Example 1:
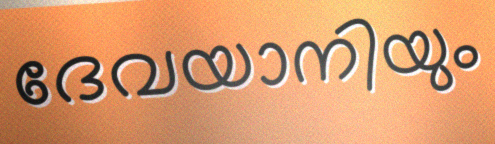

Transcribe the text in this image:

ദേവയാനിയും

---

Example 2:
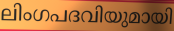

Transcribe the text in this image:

ലിംഗപദവിയുമായി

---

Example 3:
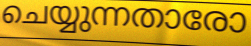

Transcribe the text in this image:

ചെയ്യുന്നതാരോ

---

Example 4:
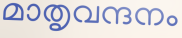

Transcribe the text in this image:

മാതൃവന്ദനം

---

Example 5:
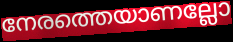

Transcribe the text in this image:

നേരത്തെയാണല്ലോ